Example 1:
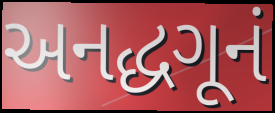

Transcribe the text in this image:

અનદ્ધગૂનં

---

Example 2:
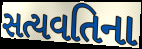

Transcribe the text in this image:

સત્યવતિના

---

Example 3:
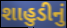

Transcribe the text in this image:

શાહુડીનું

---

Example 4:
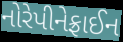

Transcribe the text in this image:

નોરેપીનેફ્રાઈન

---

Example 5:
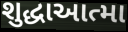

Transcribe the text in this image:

શુદ્ધાઆત્મા